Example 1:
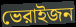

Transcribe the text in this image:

ভেরাইজন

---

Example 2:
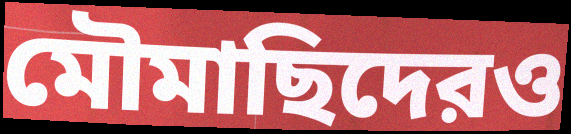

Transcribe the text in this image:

মৌমাছিদেরও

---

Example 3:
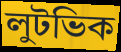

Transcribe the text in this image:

লুটভিক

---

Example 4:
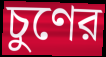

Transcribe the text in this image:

চুণের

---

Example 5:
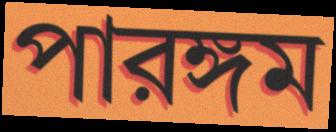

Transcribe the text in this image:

পারঙ্গম